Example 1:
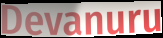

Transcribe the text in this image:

Devanuru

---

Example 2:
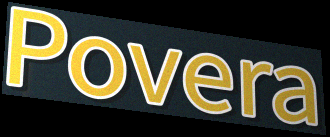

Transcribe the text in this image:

Povera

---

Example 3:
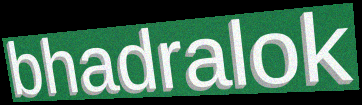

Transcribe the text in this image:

bhadralok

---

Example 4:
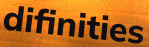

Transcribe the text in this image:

difinities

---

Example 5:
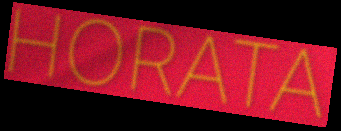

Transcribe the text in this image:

HORATA